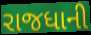
રાજધાની